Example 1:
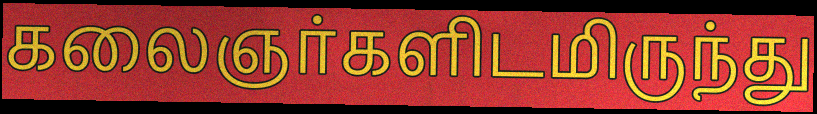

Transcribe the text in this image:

கலைஞர்களிடமிருந்து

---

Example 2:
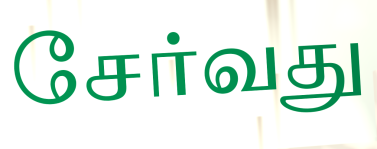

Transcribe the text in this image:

சேர்வது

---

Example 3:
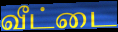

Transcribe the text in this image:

வீட்டை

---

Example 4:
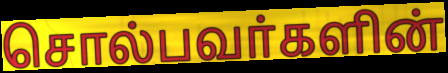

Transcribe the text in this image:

சொல்பவர்களின்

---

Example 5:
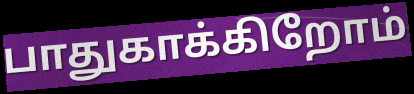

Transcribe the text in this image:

பாதுகாக்கிறோம்